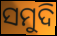
ସମୁଦି